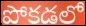
పోకడలో